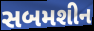
સબમશીન